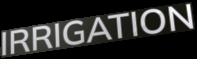
IRRIGATION